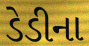
ડેડીના